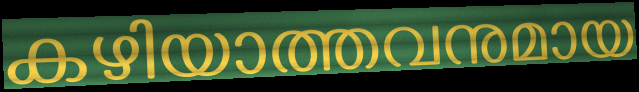
കഴിയാത്തവനുമായ